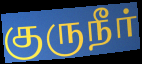
குருநீர்